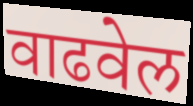
वाढवेल